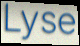
Lyse